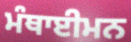
ਮੰਥਾਈਮਨ